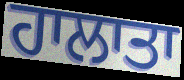
ਹਾਲਾਤਾ